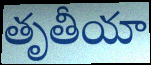
తృతీయా